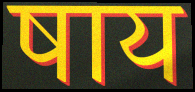
षाय